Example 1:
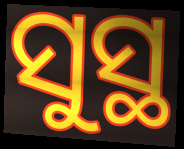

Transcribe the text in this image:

ସୁସ୍ଥ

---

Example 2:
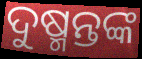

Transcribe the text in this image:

ଦୁଷ୍ମନ୍ତଙ୍କ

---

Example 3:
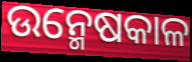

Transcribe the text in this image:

ଉନ୍ମେଷକାଳ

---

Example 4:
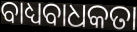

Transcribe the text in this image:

ବାଧ୍ୟବାଧକତା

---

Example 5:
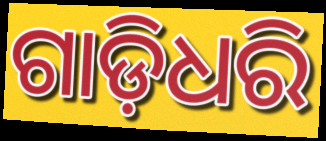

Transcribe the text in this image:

ଗାଡ଼ିଧରି